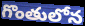
గొంతులోన